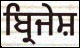
ਬ੍ਰਿਜੇਸ਼